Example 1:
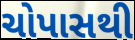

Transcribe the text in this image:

ચોપાસથી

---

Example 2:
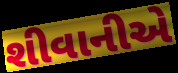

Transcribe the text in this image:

શીવાનીએ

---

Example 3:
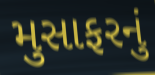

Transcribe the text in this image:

મુસાફરનું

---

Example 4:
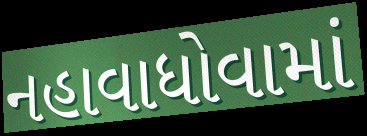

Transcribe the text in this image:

નહાવાધોવામાં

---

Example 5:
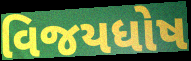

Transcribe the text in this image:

વિજયધોષ